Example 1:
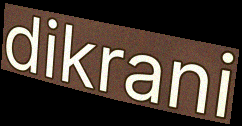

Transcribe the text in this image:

dikrani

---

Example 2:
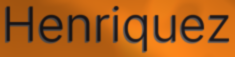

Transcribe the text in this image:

Henriquez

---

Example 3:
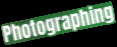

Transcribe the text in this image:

Photographing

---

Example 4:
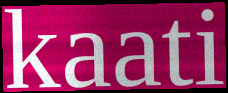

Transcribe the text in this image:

kaati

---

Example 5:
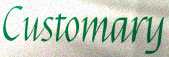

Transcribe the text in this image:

Customary